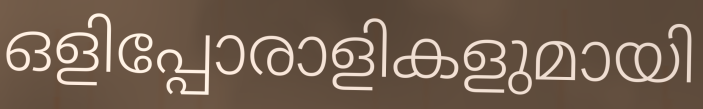
ഒളിപ്പോരാളികളുമായി